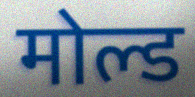
मोल्ड